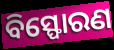
ବିସ୍ଫୋରଣ